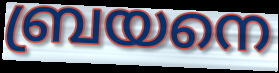
ബ്രയനെ